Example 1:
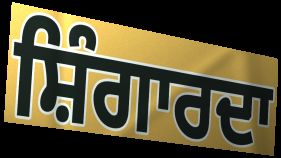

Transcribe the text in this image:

ਸ਼ਿੰਗਾਰਦਾ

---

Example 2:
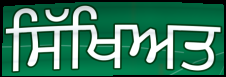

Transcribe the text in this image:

ਸਿੱਖਿਅਤ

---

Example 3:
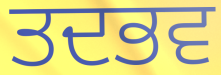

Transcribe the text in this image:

ਤਦਭਵ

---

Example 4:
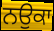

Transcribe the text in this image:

ਨਉਕਾ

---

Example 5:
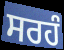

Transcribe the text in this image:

ਸਰਹੰ